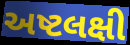
અષ્ટલક્ષી